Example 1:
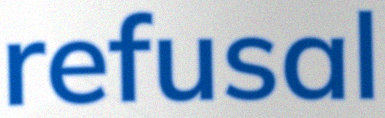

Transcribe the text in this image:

refusal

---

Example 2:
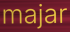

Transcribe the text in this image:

majar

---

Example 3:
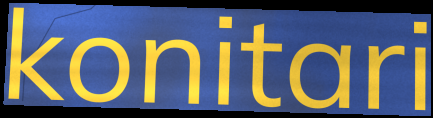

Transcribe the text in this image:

konitari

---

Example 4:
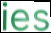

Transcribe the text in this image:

ies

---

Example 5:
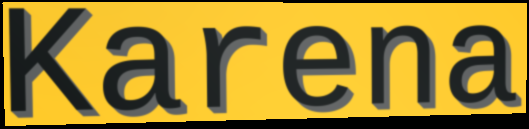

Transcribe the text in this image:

Karena